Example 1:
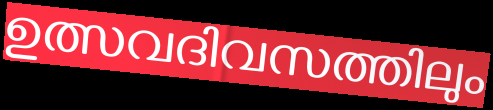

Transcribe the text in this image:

ഉത്സവദിവസത്തിലും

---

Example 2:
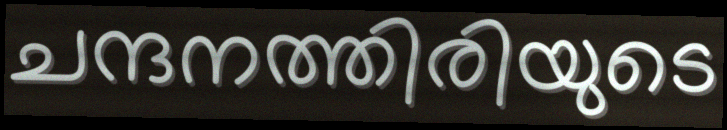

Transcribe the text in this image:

ചന്ദനത്തിരിയുടെ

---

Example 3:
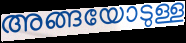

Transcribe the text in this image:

അങ്ങയോടുള്ള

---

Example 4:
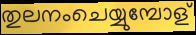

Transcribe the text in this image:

തുലനംചെയ്യുമ്പോള്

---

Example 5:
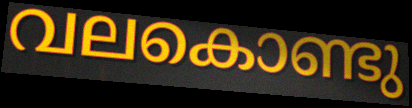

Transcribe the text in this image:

വലകൊണ്ടു